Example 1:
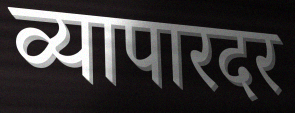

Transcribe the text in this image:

व्यापारदर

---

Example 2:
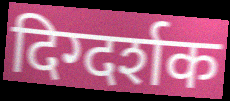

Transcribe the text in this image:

दिग्‍दर्शक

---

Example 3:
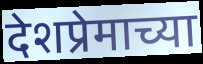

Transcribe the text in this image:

देशप्रेमाच्या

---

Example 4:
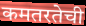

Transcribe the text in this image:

कमतरतेची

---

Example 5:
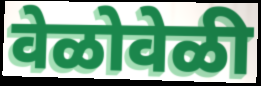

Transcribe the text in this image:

वेळोवेळी